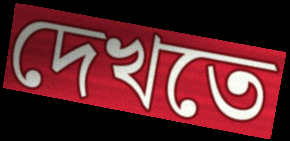
দেখতে